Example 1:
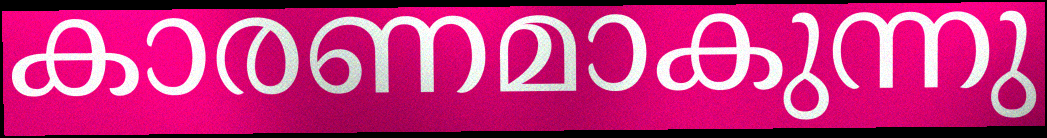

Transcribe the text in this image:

കാരണമാകുന്നു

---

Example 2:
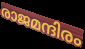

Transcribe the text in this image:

രാജമന്ദിരം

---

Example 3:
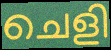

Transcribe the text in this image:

ചെളി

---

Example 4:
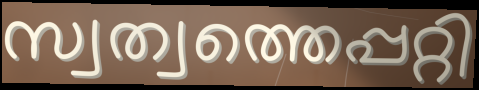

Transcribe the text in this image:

സ്വത്വത്തെപ്പറ്റി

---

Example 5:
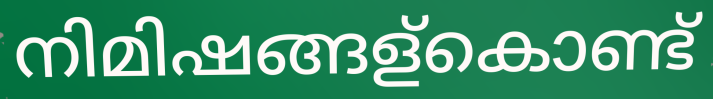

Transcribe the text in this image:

നിമിഷങ്ങള്കൊണ്ട്